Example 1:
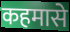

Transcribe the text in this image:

कहमासे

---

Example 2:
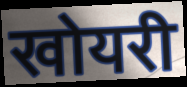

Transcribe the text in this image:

खोयरी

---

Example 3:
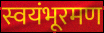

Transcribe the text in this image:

स्वयंभूरमण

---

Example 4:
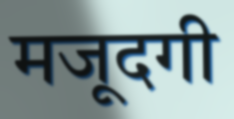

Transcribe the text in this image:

मजूदगी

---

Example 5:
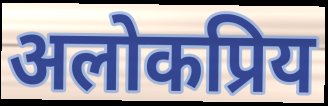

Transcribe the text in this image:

अलोकप्रिय